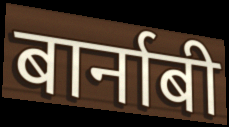
बार्नाबी